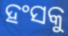
ହଂସକୁ